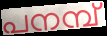
പനമ്പ്